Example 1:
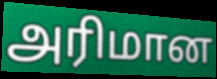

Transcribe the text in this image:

அரிமான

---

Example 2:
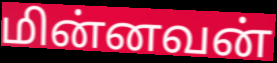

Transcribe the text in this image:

மின்னவன்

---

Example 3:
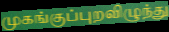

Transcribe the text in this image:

முகங்குப்புறவிழுந்து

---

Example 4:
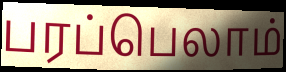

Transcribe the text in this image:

பரப்பெலாம்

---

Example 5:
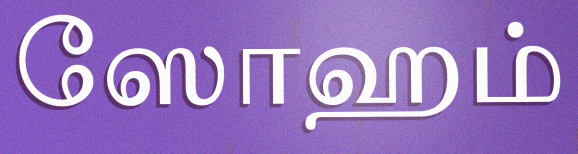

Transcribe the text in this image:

ஸோஹம்